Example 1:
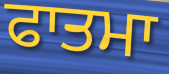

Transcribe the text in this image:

ਫਾਤਮਾ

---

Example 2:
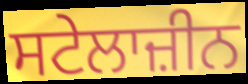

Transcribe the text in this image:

ਸਟੇਲਾਜ਼ੀਨ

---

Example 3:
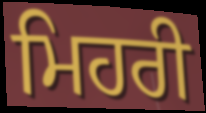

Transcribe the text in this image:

ਮਿਹਰੀ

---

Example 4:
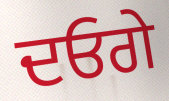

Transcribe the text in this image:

ਦਓਗੇ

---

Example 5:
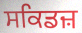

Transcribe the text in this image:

ਸਕਿਡਜ਼